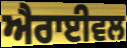
ਐਰਾਈਵਲ